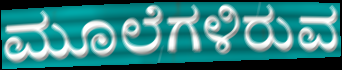
ಮೂಲೆಗಳಿರುವ